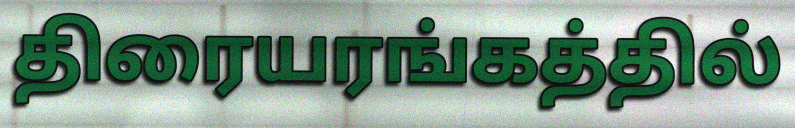
திரையரங்கத்தில்